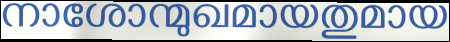
നാശോന്മുഖമായതുമായ